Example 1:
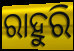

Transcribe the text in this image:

ରାହୁରି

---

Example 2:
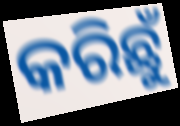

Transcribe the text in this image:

କରିଛୁଁ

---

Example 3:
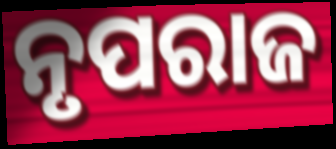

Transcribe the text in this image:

ନୃପରାଜ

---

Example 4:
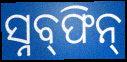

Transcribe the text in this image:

ସ୍ନବ୍‍ଫିନ୍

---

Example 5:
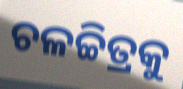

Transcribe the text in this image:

ଚଳଚ୍ଚିତ୍ରକୁ